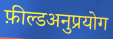
फ़ील्डअनुप्रयोग